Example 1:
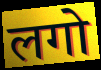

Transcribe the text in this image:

लगो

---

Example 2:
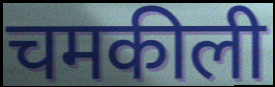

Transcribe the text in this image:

चमकीली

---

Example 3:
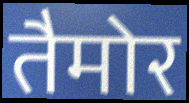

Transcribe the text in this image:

तैमोर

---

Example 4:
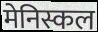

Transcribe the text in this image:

मेनिस्कल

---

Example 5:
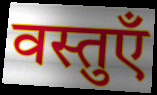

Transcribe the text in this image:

वस्‍तुएँ